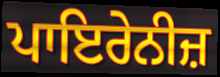
ਪਾਇਰੇਨੀਜ਼